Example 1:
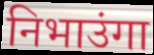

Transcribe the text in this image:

निभाउंगा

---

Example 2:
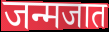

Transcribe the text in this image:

जन्मजात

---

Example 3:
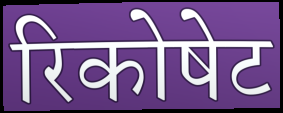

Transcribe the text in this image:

रिकोषेट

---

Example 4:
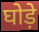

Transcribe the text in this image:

घोड़े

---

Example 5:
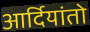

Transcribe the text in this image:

आर्दियांतो